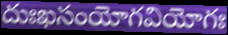
దుఃఖసంయోగవియోగః